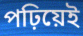
পঢ়িয়েই